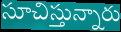
సూచిస్తున్నారు